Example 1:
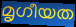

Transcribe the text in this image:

മൃഗീയത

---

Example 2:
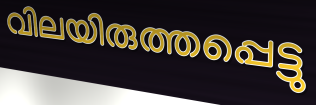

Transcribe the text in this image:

വിലയിരുത്തപ്പെട്ടു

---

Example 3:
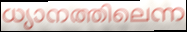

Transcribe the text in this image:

ധ്യാനത്തിലെന്ന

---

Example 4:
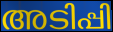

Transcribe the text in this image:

അടിപ്പി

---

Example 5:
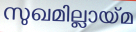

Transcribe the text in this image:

സുഖമില്ലായ്മ